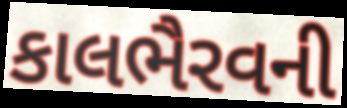
કાલભૈરવની